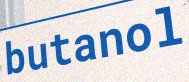
butanol